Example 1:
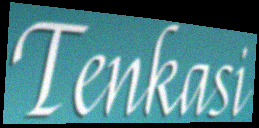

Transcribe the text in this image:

Tenkasi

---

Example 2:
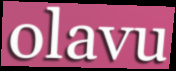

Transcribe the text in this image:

olavu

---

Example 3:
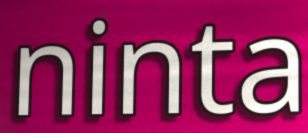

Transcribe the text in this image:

ninta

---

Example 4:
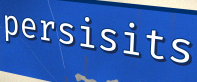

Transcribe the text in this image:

persisits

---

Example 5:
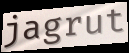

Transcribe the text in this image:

jagrut